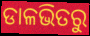
ଡାଳଭିତରୁ